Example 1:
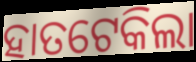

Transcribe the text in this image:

ହାତଟେକିଲା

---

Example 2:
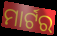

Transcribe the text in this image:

ମାର୍ଟର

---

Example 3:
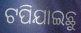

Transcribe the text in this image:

ଟପିଯାଇଛୁ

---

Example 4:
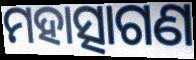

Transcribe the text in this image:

ମହାତ୍ସାଗଣ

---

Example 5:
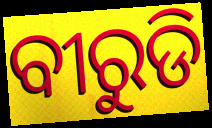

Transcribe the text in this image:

ବୀରୁଡି